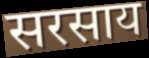
सरसाय